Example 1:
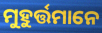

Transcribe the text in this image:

ମୁହୁର୍ତ୍ତମାନେ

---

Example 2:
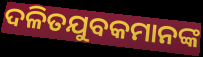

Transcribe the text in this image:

ଦଳିତଯୁବକମାନଙ୍କ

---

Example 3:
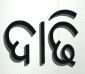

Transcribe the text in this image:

ଦାଢି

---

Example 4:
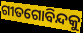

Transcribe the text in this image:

ଗୀତଗୋବିନ୍ଦକୁ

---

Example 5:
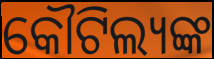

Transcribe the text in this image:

କୌଟିଲ୍ୟଙ୍କ